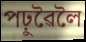
পঢ়ুৱৈলৈ